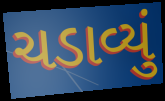
ચડાવ્યું